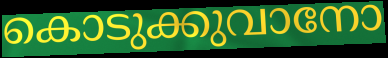
കൊടുക്കുവാനോ